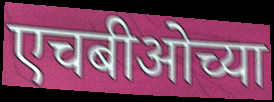
एचबीओच्या